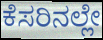
ಕೆಸರಿನಲ್ಲೇ